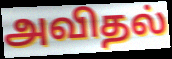
அவிதல்